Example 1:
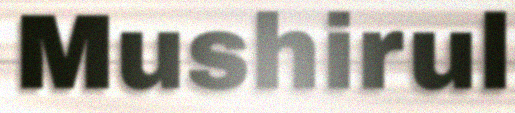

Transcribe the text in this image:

Mushirul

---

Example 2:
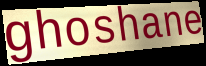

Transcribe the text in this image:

ghoshane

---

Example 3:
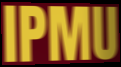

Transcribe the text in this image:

IPMU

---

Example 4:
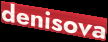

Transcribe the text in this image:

denisova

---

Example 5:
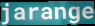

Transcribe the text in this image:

jarange